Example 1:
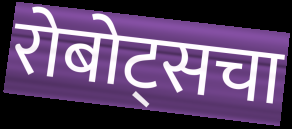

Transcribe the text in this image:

रोबोट्सचा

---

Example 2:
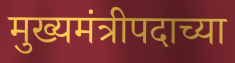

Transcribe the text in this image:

मुख्यमंत्रीपदाच्या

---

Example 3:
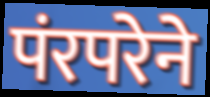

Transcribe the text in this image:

पंरपरेने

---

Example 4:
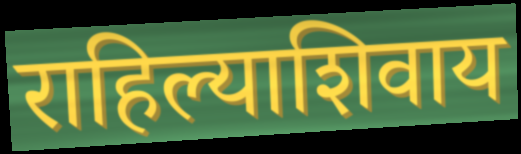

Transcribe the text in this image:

राहिल्याशिवाय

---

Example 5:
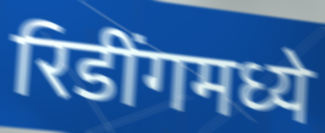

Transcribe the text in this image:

रिडींगमध्ये